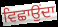
ਵਿਛਾਉਂਦਾ